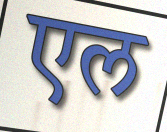
एल